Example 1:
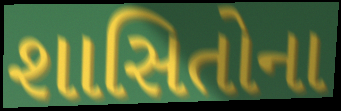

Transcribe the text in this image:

શાસિતોના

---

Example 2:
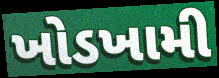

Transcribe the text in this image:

ખોડખામી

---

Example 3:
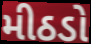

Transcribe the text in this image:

મીઠડો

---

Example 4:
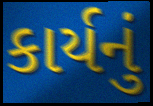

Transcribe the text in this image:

કાર્યનું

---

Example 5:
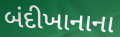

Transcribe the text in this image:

બંદીખાનાના